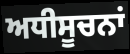
ਅਧੀਸੂਚਨਾਂ